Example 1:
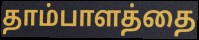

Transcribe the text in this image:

தாம்பாளத்தை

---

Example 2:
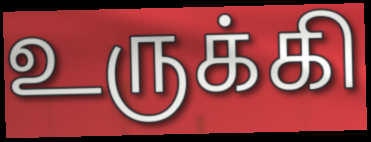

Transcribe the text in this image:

உருக்கி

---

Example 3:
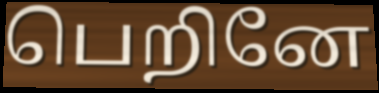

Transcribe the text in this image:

பெறினே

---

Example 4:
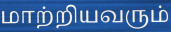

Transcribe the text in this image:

மாற்றியவரும்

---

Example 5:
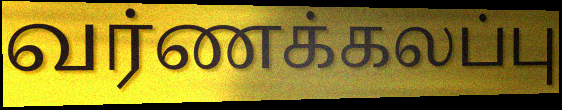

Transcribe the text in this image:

வர்ணக்கலப்பு